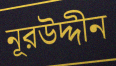
নূরউদ্দীন